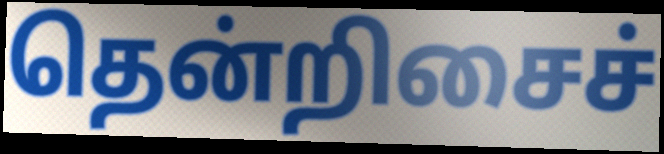
தென்றிசைச்